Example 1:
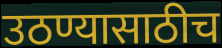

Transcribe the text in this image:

उठण्यासाठीच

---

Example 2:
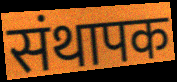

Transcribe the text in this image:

संथापक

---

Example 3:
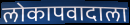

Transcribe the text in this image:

लोकापवादाला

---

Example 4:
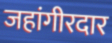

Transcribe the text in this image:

जहांगीरदार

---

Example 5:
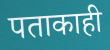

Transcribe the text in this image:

पताकाही